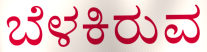
ಬೆಳಕಿರುವ